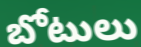
బోటులు